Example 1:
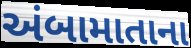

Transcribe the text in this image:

અંબામાતાના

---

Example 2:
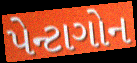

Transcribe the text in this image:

પેન્ટાગોન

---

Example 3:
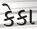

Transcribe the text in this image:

કેકા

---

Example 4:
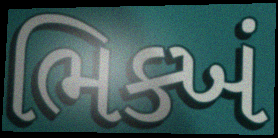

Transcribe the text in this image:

ભિક્ખં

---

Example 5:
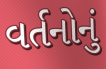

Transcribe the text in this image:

વર્તનોનું